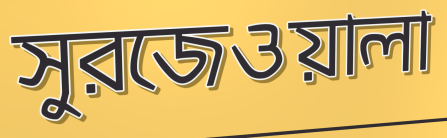
সুরজেওয়ালা